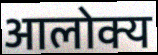
आलोक्य